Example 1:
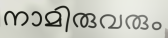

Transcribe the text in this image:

നാമിരുവരും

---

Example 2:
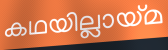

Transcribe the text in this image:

കഥയില്ലായ്മ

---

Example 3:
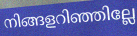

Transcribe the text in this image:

നിങ്ങളറിഞ്ഞില്ലേ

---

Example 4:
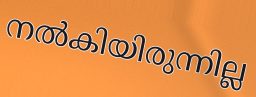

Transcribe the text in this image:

നൽകിയിരുന്നില്ല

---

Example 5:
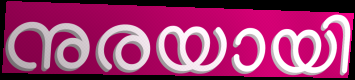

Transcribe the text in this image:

നുരയായി